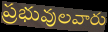
ప్రభువులవారు